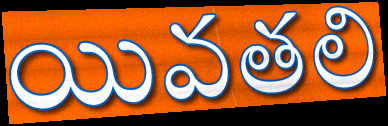
యివతలి